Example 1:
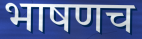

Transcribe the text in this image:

भाषणच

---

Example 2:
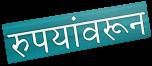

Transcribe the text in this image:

रुपयांवरून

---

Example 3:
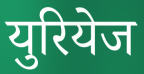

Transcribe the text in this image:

युरियेज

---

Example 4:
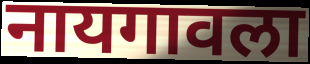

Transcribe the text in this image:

नायगावला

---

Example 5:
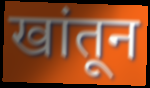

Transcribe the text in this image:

खांतून